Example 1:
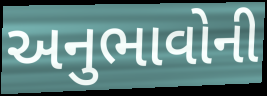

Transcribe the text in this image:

અનુભાવોની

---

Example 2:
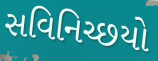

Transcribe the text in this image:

સવિનિચ્છયો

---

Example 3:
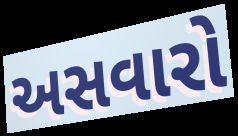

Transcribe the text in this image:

અસવારો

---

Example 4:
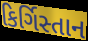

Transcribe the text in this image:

કિર્ગિસ્તાન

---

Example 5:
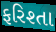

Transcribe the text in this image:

ફરિશ્તા